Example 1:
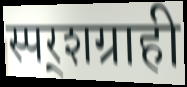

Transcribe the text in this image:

स्पर्शग्राही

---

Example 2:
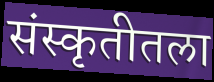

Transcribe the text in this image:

संस्कृतीतला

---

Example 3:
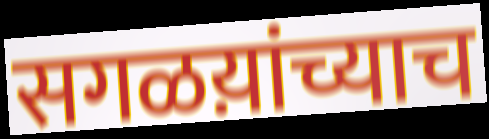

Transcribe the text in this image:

सगळय़ांच्याच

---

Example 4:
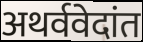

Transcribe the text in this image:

अथर्ववेदांत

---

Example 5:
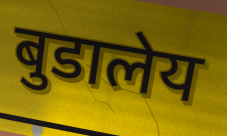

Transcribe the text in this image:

बुडालेय